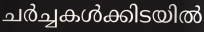
ചർച്ചകൾക്കിടയിൽ